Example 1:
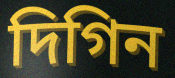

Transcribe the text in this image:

দিগিন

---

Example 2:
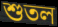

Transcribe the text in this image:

শুতল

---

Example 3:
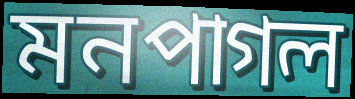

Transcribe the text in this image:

মনপাগল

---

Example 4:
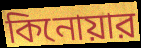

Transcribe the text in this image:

কিনোয়ার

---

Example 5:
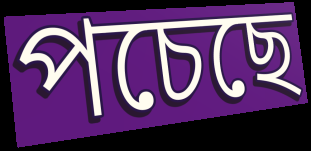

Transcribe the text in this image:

পচেছে